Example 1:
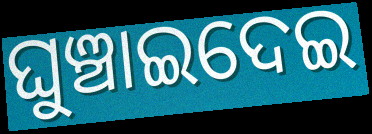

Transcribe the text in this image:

ଘୁଞ୍ଚାଇଦେଇ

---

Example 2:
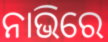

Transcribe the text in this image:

ନାଭିରେ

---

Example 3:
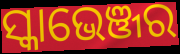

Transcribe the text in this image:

ସ୍କାଭେଞ୍ଜର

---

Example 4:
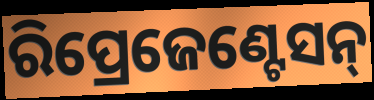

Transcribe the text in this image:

ରିପ୍ରେଜେଣ୍ଟେସନ୍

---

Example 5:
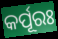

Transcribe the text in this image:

କର୍ପୂରଃ